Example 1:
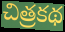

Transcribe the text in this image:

చిత్రకథ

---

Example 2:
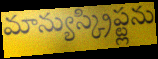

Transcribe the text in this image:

మాన్యుస్క్రిప్ట్లను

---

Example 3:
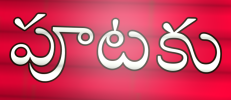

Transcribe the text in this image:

పూటకు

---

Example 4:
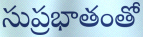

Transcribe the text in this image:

సుప్రభాతంతో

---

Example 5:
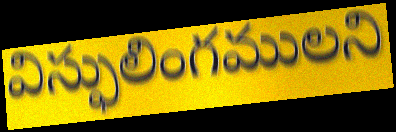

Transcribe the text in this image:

విస్ఫులింగములని